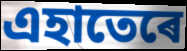
এহাতেৰে